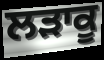
ਲੜਾਕੂ